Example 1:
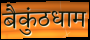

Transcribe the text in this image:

बैकुंठधाम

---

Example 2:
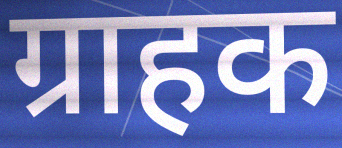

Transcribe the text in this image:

ग्राहक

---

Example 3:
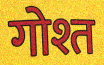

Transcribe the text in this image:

गोश्त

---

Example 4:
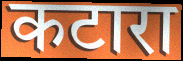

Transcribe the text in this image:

कटारा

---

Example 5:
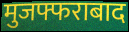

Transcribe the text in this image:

मुजफ्फराबाद